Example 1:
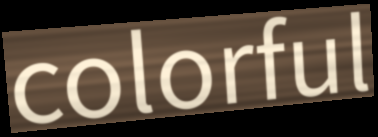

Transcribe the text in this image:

colorful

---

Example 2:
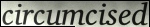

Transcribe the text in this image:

circumcised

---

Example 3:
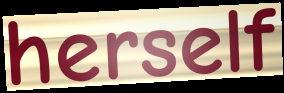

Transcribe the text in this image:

herself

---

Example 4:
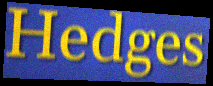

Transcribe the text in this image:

Hedges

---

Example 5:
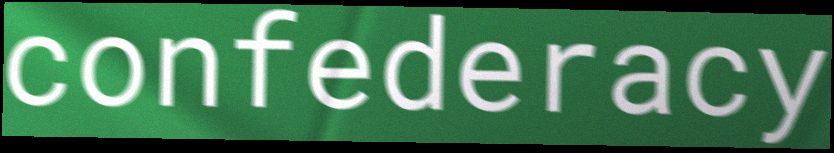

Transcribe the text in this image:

confederacy